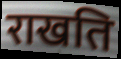
राखति